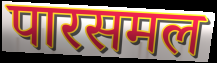
पारसमल